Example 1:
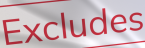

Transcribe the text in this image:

Excludes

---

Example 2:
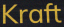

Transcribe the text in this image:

Kraft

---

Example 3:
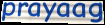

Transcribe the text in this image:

prayaag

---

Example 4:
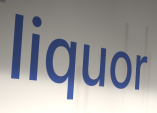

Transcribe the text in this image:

liquor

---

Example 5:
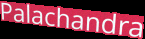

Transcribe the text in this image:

Palachandra